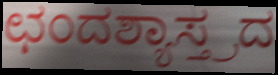
ಛಂದಶ್ಯಾಸ್ತ್ರದ